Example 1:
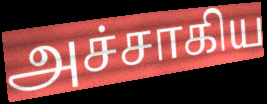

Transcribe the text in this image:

அச்சாகிய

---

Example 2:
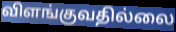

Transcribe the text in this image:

விளங்குவதில்லை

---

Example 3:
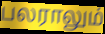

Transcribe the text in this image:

பலராலும்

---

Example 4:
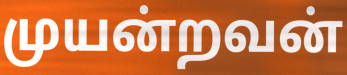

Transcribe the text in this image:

முயன்றவன்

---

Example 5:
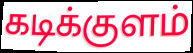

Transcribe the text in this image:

கடிக்குளம்